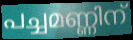
പച്ചമണ്ണിന്